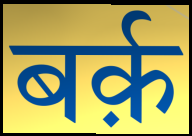
बर्क़